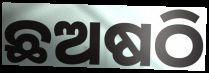
ଛଅଷଠି